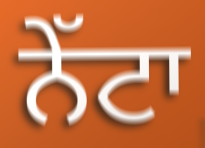
ਨੇੱਟਾ